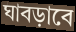
ঘাবড়াবে